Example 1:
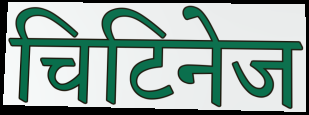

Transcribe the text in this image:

चिटिनेज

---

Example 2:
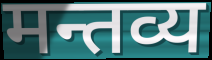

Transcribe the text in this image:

मन्तव्य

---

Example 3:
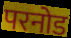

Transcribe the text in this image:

परनोड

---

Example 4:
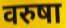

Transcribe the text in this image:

वरुषा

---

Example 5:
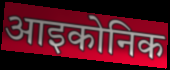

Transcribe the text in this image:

आइकोनिक